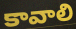
కావాలి